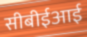
सीबीईआई